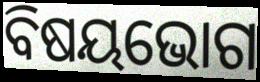
ବିଷୟଭୋଗ